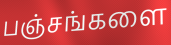
பஞ்சங்களை